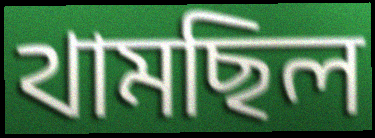
থামছিল